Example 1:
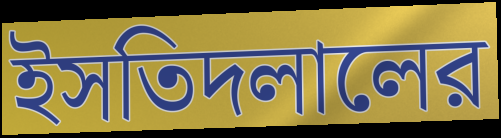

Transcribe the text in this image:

ইসতিদলালের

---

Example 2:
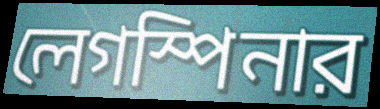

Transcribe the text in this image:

লেগস্পিনার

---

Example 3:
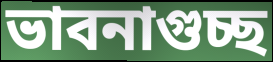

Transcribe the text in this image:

ভাবনাগুচ্ছ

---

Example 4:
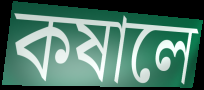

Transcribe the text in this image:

কষালে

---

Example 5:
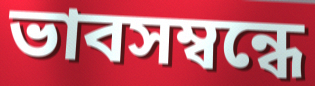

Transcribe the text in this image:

ভাবসম্বন্ধে